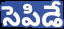
సెపిడే